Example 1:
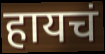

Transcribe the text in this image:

हायचं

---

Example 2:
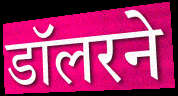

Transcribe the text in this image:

डॉलरने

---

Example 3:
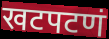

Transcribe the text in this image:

खटपटणं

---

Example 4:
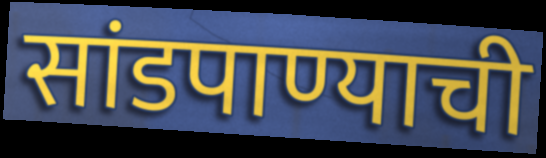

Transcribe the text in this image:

सांडपाण्याची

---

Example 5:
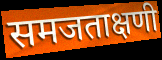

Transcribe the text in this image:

समजताक्षणी